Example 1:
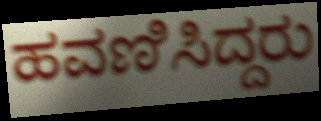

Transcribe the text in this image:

ಹವಣಿಸಿದ್ದರು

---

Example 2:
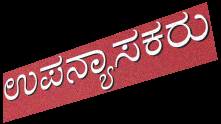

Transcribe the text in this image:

ಉಪನ್ಯಾಸಕರು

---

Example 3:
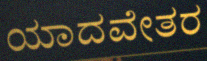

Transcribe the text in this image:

ಯಾದವೇತರ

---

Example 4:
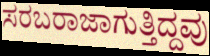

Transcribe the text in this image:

ಸರಬರಾಜಾಗುತ್ತಿದ್ದವು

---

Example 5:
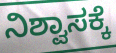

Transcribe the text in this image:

ನಿಶ್ವಾಸಕ್ಕೆ